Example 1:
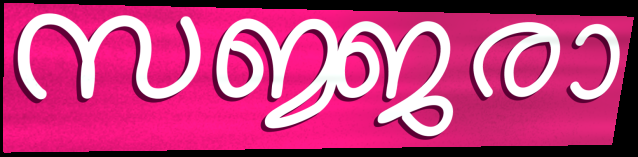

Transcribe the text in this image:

സജ്ജരാ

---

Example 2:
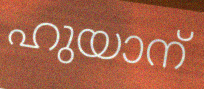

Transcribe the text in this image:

ഹുയാന്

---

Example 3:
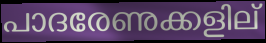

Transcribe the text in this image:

പാദരേണുക്കളില്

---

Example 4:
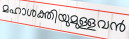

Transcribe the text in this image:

മഹാശക്തിയുമുള്ളവൻ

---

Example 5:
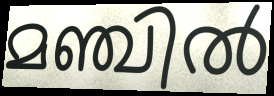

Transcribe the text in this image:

മഞ്ചിൽ